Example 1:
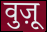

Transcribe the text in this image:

वुज़ू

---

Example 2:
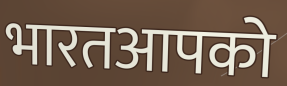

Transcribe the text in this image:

भारतआपको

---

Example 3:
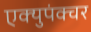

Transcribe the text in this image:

एक्युपंक्चर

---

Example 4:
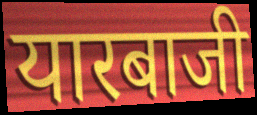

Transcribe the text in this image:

यारबाजी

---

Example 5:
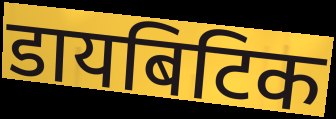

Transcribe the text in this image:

डायबिटिक